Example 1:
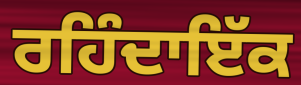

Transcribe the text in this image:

ਰਹਿੰਦਾਇੱਕ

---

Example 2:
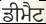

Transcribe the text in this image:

ਡੀਮੈਟ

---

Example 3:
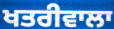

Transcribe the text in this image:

ਖਤਰੀਵਾਲਾ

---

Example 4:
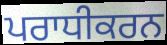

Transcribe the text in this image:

ਪਰਾਧੀਕਰਨ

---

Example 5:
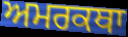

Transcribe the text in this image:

ਅਮਰਕਥਾ